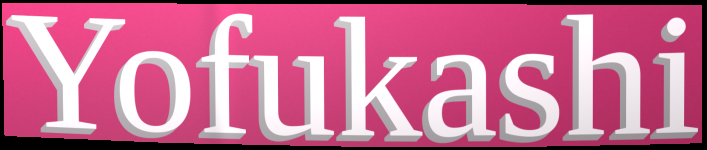
Yofukashi